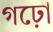
গঢ়ো